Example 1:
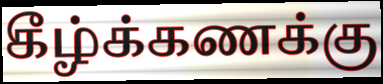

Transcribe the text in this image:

கீழ்க்கணக்கு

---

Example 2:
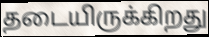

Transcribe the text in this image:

தடையிருக்கிறது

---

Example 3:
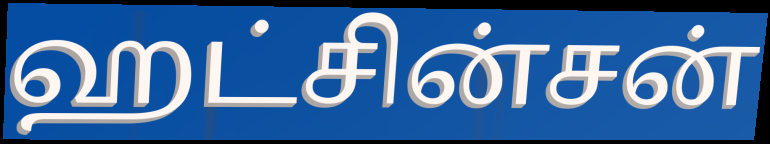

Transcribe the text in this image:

ஹட்சின்சன்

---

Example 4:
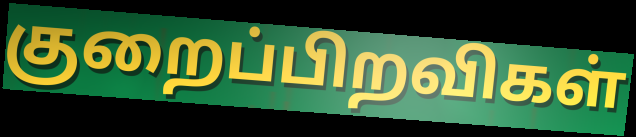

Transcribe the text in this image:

குறைப்பிறவிகள்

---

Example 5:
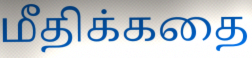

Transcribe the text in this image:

மீதிக்கதை